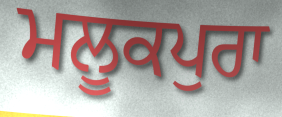
ਮਲੂਕਪੁਰਾ